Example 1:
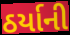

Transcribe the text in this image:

ઠર્યાની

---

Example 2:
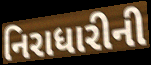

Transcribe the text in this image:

નિરાધારીની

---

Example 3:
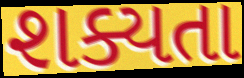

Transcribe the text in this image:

શક્યતા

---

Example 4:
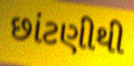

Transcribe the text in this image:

છાંટણીથી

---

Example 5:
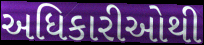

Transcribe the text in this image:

અધિકારીઓથી